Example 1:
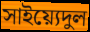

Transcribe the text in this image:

সাইয়্যেদুল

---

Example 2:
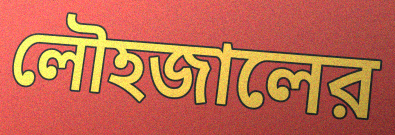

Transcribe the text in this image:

লৌহজালের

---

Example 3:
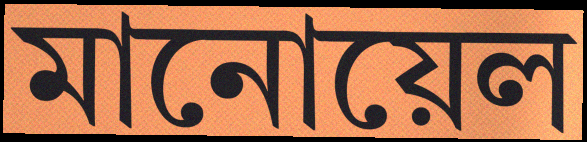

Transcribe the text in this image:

মানোয়েল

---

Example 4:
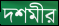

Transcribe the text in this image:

দশমীর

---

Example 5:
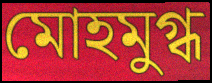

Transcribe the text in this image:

মোহমুগ্ধ